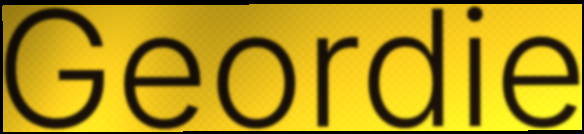
Geordie